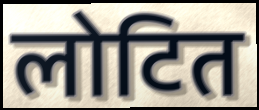
लोटित